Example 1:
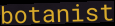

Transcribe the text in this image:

botanist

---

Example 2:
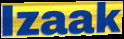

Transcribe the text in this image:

Izaak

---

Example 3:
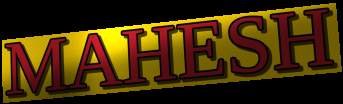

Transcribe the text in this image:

MAHESH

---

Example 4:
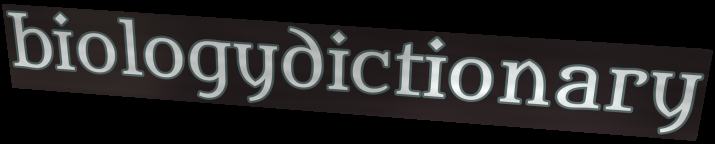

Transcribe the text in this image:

biologydictionary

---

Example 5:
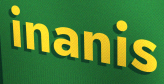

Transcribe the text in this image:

inanis